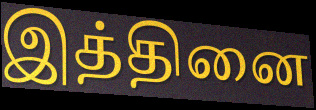
இத்தினை